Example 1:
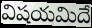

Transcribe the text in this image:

విషయమిదే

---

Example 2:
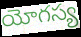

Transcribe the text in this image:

యోగస్య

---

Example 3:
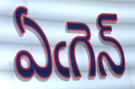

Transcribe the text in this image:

ఏఁగెన్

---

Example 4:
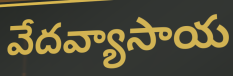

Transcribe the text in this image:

వేదవ్యాసాయ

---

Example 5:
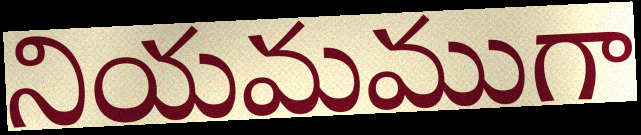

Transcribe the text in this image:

నియమముగా